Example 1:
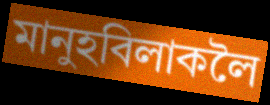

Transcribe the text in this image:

মানুহবিলাকলৈ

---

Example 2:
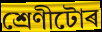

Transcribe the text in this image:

শ্ৰেণীটোৰ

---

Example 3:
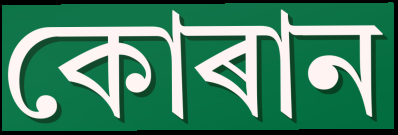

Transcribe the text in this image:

কোৰান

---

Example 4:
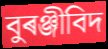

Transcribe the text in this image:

বুৰঞ্জীবিদ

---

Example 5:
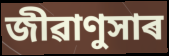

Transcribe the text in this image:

জীৱাণুসাৰ